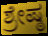
ಶ್ರೇಷ್ಠ